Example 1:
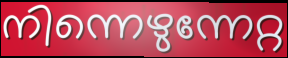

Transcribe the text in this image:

നിന്നെഴുന്നേറ്റ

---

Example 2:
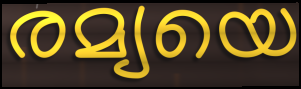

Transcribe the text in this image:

രമ്യയെ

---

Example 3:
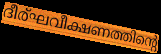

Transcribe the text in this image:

ദീര്ഘവീക്ഷണത്തിന്റെ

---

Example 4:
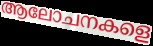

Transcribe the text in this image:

ആലോചനകളെ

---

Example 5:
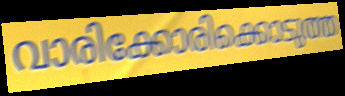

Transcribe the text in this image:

വാരിക്കോരിക്കൊടുത്ത